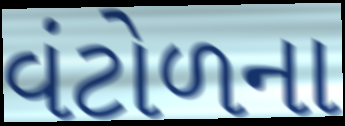
વંટોળના